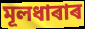
মূলধাৰাৰ